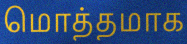
மொத்தமாக